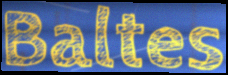
Baltes